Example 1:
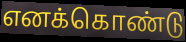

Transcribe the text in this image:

எனக்கொண்டு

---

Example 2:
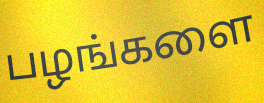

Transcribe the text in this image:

பழங்களை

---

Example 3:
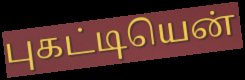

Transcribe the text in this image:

புகட்டியென்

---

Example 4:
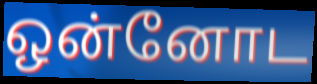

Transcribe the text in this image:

ஒன்னோட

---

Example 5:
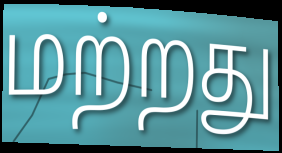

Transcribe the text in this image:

மற்றது